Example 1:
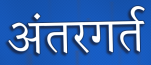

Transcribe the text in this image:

अंतरगर्त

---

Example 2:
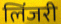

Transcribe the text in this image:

लिंजरी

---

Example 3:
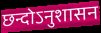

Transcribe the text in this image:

छन्दोऽनुशासन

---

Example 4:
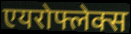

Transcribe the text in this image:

एयरोफ्लेक्स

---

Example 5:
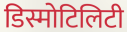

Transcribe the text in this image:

डिस्मोटिलिटी